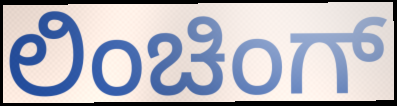
ಲಿಂಚಿಂಗ್